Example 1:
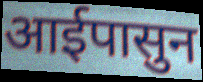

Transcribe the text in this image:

आईपासुन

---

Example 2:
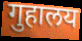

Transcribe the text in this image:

गुहालय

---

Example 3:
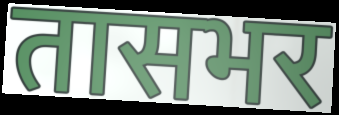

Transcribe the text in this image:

तासभर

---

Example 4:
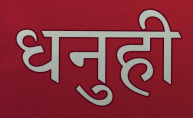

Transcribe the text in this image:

धनुही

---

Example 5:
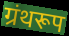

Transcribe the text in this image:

ग्रंथरूप